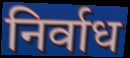
निर्वाध